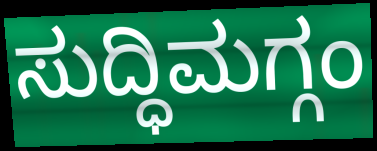
ಸುದ್ಧಿಮಗ್ಗಂ